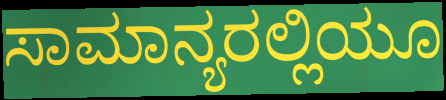
ಸಾಮಾನ್ಯರಲ್ಲಿಯೂ